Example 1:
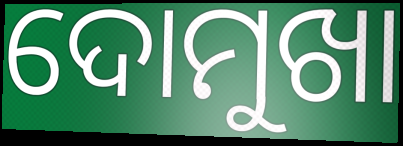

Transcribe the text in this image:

ଦୋମୁଖା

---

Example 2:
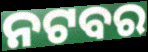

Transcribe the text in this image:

ନଟବର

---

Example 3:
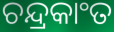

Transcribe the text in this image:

ଚନ୍ଦ୍ରକାଂତ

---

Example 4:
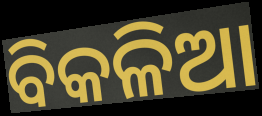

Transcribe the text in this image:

ବିକଳିଆ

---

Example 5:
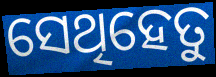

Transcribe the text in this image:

ସେଥିହେତୁ